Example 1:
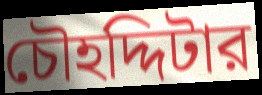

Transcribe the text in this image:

চৌহদ্দিটার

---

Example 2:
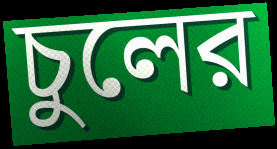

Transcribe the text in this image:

চুলের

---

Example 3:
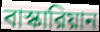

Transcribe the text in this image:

বাস্কারিয়ান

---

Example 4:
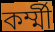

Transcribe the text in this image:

কর্ম্মী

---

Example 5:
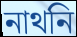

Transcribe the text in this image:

নাথনি